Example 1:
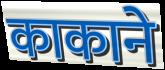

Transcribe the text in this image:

काकाने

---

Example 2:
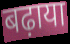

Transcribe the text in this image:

बढ़ाया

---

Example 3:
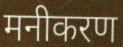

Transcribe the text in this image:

मनीकरण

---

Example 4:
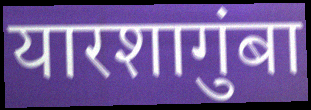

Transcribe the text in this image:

यारशागुंबा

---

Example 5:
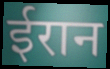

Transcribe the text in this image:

ईरान